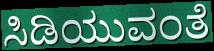
ಸಿಡಿಯುವಂತೆ